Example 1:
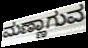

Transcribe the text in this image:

ಮಣ್ಣಾಗುವ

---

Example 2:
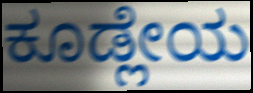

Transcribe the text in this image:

ಕೂಡ್ಲೇಯ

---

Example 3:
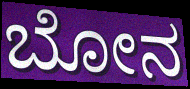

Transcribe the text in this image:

ಬೋನ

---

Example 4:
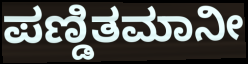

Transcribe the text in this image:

ಪಣ್ಡಿತಮಾನೀ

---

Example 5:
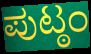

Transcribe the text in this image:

ಪುಟ್ಠಂ